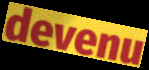
devenu